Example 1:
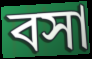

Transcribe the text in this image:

বসা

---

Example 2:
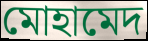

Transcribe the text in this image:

মোহামেদ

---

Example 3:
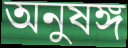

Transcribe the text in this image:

অনুষঙ্গ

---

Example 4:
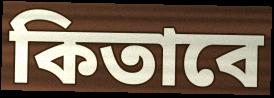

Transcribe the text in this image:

কিতাবে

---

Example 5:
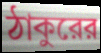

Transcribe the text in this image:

ঠাকুরের